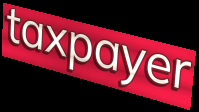
taxpayer